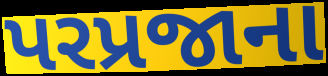
પરપ્રજાના